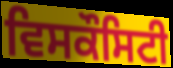
ਵਿਸਕੌਸਿਟੀ